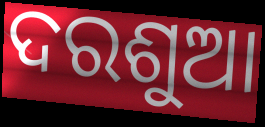
ଦରଶୁଆ